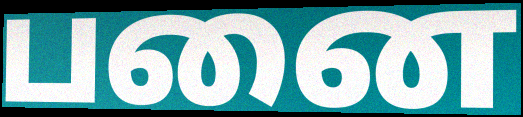
பனை